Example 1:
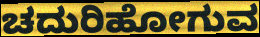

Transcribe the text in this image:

ಚದುರಿಹೋಗುವ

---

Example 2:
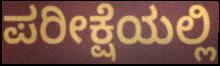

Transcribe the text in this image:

ಪರೀಕ್ಷೆಯಲ್ಲಿ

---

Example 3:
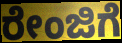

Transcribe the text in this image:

ರೇಂಜಿಗೆ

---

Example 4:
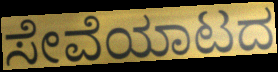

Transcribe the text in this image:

ಸೇವೆಯಾಟದ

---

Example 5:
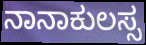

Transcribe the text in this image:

ನಾನಾಕುಲಸ್ಸ